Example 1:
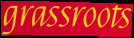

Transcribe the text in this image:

grassroots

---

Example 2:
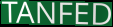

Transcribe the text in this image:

TANFED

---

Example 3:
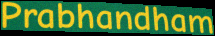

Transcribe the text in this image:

Prabhandham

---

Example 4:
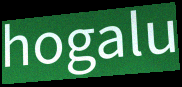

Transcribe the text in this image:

hogalu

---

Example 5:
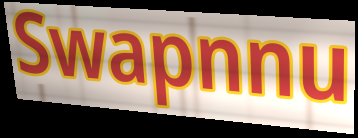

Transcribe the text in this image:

Swapnnu